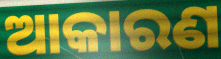
ଆକାରଣ